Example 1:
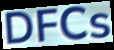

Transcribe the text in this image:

DFCs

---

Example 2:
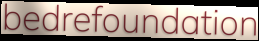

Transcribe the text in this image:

bedrefoundation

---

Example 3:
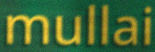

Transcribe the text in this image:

mullai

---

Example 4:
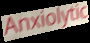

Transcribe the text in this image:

Anxiolytic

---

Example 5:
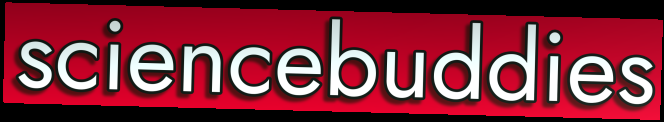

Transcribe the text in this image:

sciencebuddies